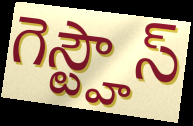
గెస్ట్హౌస్